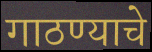
गाठण्याचे